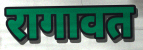
रागावत